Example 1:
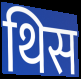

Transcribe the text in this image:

थिस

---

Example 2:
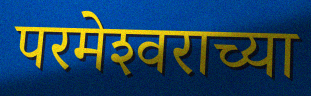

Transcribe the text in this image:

परमेश्‍वराच्या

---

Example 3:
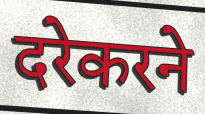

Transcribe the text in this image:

दरेकरने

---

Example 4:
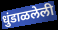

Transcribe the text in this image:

धुंडाळलेली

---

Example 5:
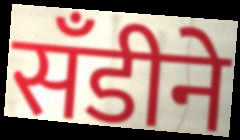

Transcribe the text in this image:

सॅंडीने